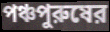
পঞ্চপুরুষের